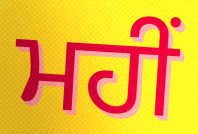
ਮਹੀਂ